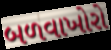
બળવાખોરો